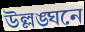
উল্লঙ্ঘনে